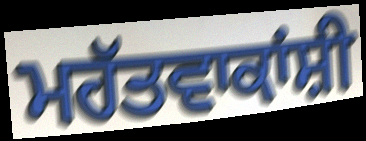
ਮਹੱਤਵਾਕਾਂਸ਼ੀ